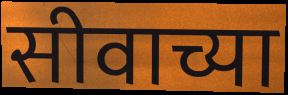
सीवाच्या